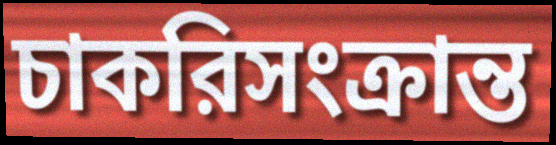
চাকরিসংক্রান্ত